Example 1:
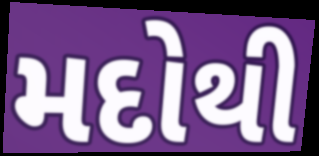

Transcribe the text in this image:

મદોથી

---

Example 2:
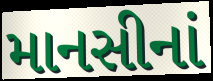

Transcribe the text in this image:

માનસીનાં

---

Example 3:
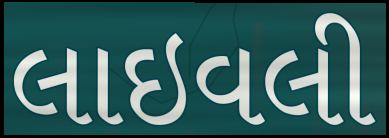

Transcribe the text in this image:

લાઇવલી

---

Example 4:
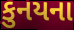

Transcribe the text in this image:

કુનયના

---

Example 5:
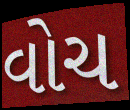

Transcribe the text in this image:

વોચ